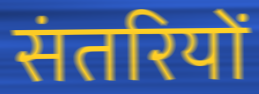
संतरियों